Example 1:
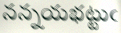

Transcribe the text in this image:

నన్నయభట్టుఁ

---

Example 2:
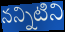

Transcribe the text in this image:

నన్నిటిని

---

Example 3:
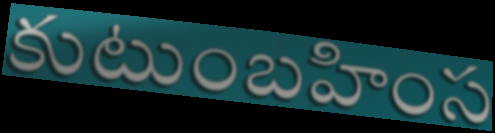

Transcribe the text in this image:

కుటుంబహింస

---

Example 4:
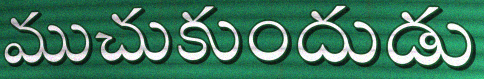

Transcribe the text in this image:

ముచుకుందుడు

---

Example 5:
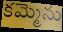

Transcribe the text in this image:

కమ్మెను